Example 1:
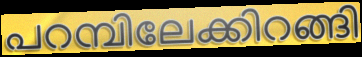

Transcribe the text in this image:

പറമ്പിലേക്കിറങ്ങി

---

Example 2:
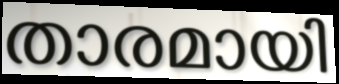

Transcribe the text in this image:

താരമായി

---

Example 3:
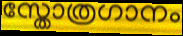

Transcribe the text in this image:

സ്തോത്രഗാനം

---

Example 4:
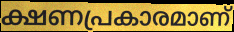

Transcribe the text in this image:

ക്ഷണപ്രകാരമാണ്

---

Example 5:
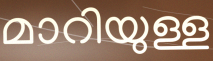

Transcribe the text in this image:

മാറിയുള്ള